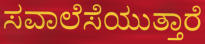
ಸವಾಲೆಸೆಯುತ್ತಾರೆ